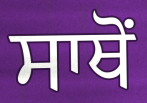
ਸਾਥੋਂ